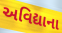
અવિદ્યાના